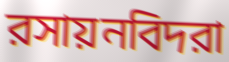
রসায়নবিদরা